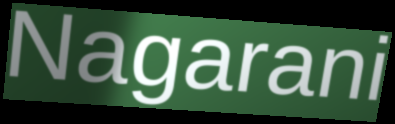
Nagarani